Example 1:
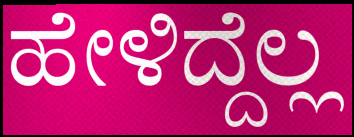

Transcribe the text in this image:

ಹೇಳಿದ್ದೆಲ್ಲ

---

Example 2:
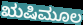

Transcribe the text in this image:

ಋಷಿಮೂಲ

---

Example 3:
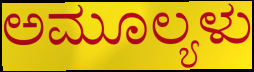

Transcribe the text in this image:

ಅಮೂಲ್ಯಳು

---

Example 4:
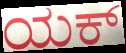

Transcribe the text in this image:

ಯಕ್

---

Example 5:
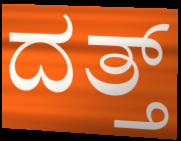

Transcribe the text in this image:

ದತ್ತ್